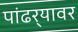
पांढर्‍यावर